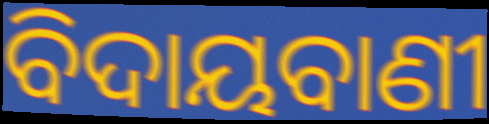
ବିଦାୟବାଣୀ